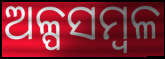
ଅଳ୍ପସମ୍ବଳ